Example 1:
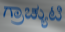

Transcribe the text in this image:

ಗ್ರಾಚ್ಯುಟಿ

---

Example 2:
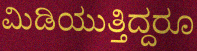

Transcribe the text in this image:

ಮಿಡಿಯುತ್ತಿದ್ದರೂ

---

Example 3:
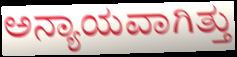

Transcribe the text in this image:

ಅನ್ಯಾಯವಾಗಿತ್ತು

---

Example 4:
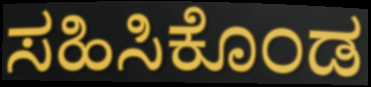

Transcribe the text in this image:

ಸಹಿಸಿಕೊಂಡ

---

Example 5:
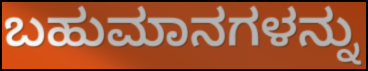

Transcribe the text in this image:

ಬಹುಮಾನಗಳನ್ನು